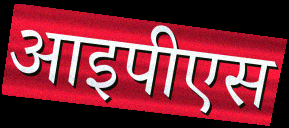
आइपीएस